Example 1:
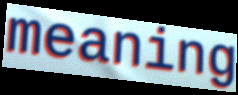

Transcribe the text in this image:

meaning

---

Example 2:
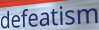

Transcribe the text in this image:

defeatism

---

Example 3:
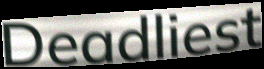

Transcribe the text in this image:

Deadliest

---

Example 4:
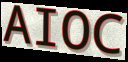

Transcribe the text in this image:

AIOC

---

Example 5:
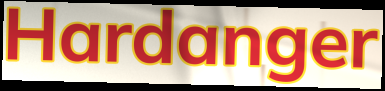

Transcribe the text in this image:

Hardanger